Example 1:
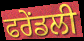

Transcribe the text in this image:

ਫਰੇਂਡਲੀ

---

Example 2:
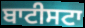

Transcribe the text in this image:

ਬਾਟੀਸਟਾ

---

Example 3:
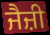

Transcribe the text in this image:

ਜੈਜ਼ੀ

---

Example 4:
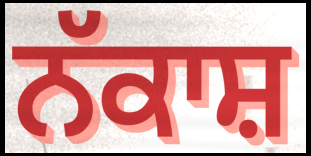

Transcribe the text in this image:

ਨੱਕਾਸ਼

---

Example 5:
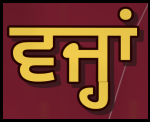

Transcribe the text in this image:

ਵਜ੍ਹਾਂ